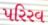
પરિરવ